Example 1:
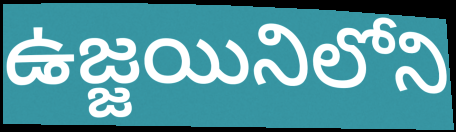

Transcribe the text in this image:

ఉజ్జయినిలోని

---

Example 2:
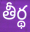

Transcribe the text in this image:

తీర్థ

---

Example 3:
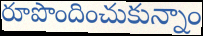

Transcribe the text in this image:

రూపొందించుకున్నాం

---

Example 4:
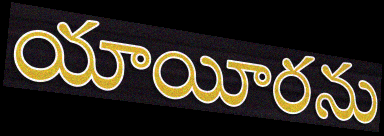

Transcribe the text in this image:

యాయీరను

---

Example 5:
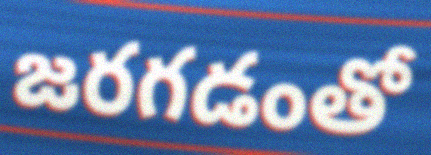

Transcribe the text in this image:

జరగడంతో